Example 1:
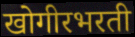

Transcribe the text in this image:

खोगीरभरती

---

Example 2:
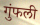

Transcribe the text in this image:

गुंफली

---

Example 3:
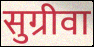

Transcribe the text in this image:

सुग्रीवा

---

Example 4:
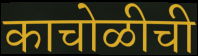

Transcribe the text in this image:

काचोळीची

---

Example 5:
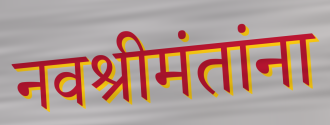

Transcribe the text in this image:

नवश्रीमंतांना